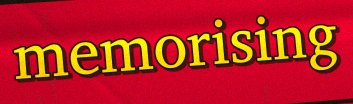
memorising